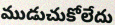
ముడుచుకోలేదు